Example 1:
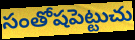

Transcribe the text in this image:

సంతోషపెట్టుచు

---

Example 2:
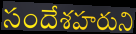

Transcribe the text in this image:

సందేశహరుని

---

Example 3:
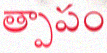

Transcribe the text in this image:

త్పాపం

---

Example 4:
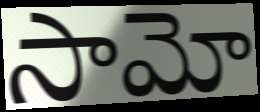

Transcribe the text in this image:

సామో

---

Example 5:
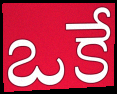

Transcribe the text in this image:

ఒకే